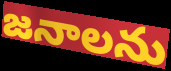
జనాలను